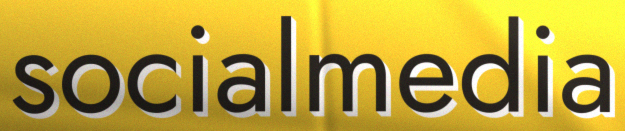
socialmedia